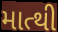
માત્થી